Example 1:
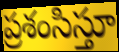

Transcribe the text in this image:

ప్రశంసిస్తూ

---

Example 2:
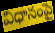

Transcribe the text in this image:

విధానంపై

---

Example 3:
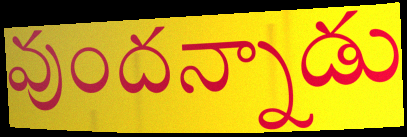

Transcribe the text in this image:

వుందన్నాడు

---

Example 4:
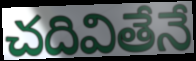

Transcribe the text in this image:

చదివితేనే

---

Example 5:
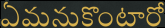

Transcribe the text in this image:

ఏమనుకొంటారో